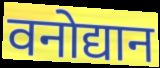
वनोद्यान